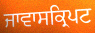
ਜਾਵਾਸਕ੍ਰਿਪਟ